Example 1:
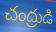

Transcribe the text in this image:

చంద్రుడి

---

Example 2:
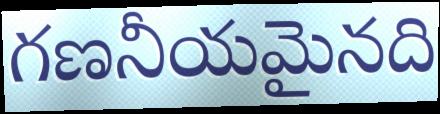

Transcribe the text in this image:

గణనీయమైనది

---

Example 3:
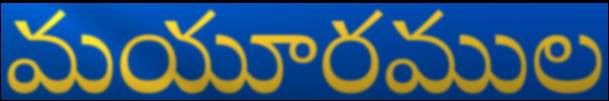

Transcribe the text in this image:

మయూరముల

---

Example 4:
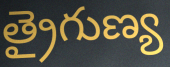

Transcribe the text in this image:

త్రైగుణ్య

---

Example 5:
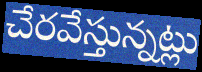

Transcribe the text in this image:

చేరవేస్తున్నట్లు